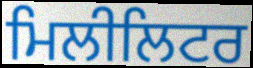
ਮਿਲੀਲਿਟਰ